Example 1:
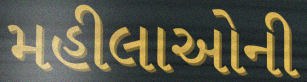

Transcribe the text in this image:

મહીલાઓની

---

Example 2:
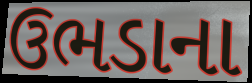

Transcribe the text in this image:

ઉભડાના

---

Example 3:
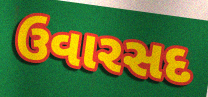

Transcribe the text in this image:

ઉવારસદ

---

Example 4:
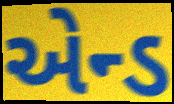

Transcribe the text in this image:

એન્ડ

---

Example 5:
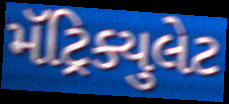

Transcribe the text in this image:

મૅટ્રિક્યુલેટ